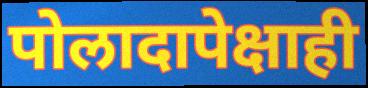
पोलादापेक्षाही